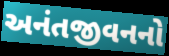
અનંતજીવનનો